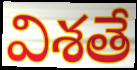
విశతే